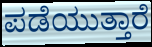
ಪಡೆಯುತ್ತಾರೆ